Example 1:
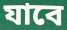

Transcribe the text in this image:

যাবে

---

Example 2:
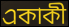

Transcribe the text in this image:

একাকী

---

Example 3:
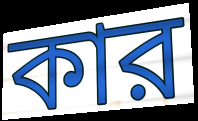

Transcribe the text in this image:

কার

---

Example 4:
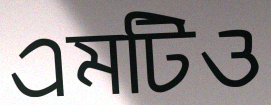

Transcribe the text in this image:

এমটিও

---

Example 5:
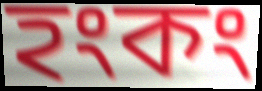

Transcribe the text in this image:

হংকং